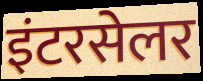
इंटरसेलर